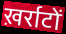
ख़र्राटों